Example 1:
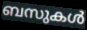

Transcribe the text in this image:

ബസുകൾ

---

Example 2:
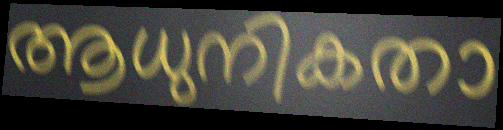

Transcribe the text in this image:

ആധുനികതാ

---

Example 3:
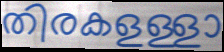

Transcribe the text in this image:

തിരകളള്ളാ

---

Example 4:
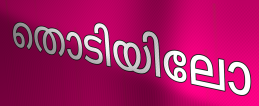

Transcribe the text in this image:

തൊടിയിലോ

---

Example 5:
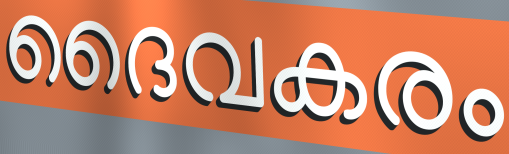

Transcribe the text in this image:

ദൈവകരം